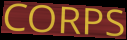
CORPS